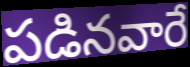
పడినవారే